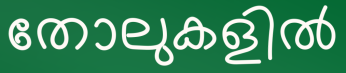
തോലുകളിൽ